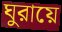
ঘুরায়ে